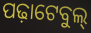
ପଢ଼ାଟେବୁଲ୍